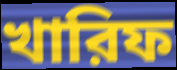
খারিফ